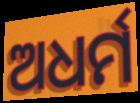
ଅଧର୍ମ